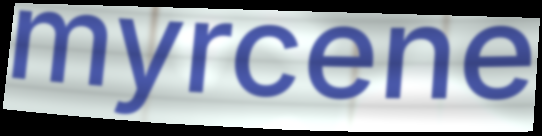
myrcene